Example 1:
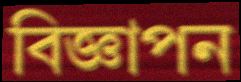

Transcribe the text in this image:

বিজ্ঞাপন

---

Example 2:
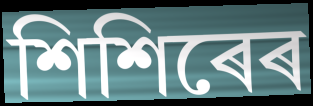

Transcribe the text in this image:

শিশিৰেৰ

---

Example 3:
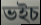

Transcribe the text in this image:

ভইচ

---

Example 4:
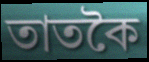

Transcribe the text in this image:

তাতকৈ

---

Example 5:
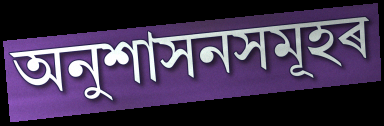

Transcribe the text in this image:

অনুশাসনসমূহৰ